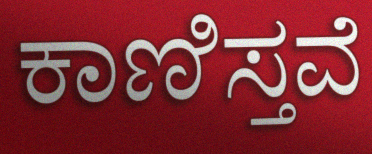
ಕಾಣಿಸ್ತವೆ